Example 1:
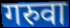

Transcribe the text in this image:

गरुवा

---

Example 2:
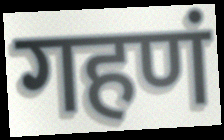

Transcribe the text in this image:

गहणं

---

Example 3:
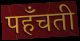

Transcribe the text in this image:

पहँचती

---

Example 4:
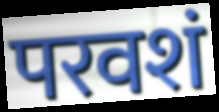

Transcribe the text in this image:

परवशं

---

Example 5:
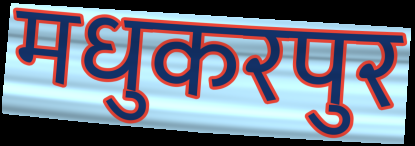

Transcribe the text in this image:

मधुकरपुर